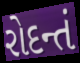
રોદન્તં